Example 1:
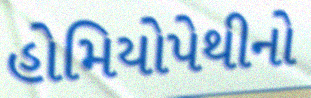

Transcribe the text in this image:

હોમિયોપેથીનો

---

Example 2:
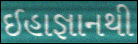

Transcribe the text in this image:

ઈહાજ્ઞાનથી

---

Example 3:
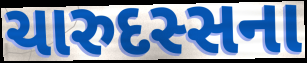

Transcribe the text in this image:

ચારુદસ્સના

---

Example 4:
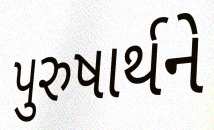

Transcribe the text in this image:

પુરુષાર્થને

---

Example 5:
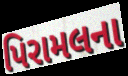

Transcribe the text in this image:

પિરામલના